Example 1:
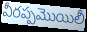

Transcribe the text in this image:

వీరప్పమొయిలీ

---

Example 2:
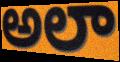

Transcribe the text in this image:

అలా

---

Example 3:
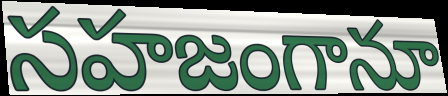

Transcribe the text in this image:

సహజంగానూ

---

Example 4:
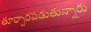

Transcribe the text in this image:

తూర్పారపడుతున్నారు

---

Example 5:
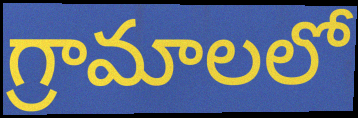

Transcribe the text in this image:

గ్రామాలలో